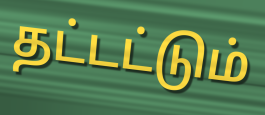
தட்டட்டும்